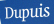
Dupuis